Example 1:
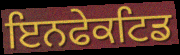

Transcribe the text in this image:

ਇਨਫੇਕਟਿਡ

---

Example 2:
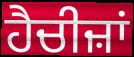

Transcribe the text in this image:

ਹੈਚੀਜ਼ਾਂ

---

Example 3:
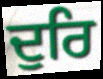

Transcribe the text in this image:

ਦੁਰਿ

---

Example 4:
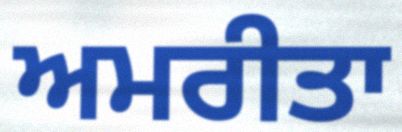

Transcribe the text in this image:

ਅਮਰੀਤਾ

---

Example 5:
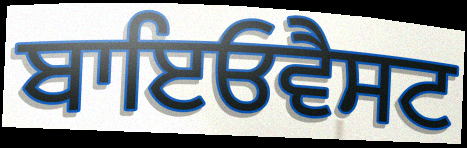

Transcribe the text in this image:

ਬਾਇਓਵੈਸਟ